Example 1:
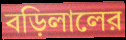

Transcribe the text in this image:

বড়িলালের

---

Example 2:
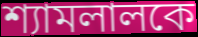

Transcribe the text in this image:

শ্যামলালকে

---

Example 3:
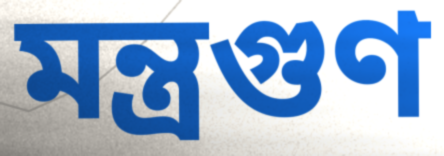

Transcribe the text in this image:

মন্ত্রগুণ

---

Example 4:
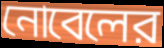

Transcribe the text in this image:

নোবেলের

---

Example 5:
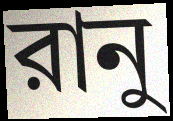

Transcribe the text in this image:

রানু